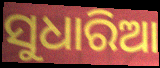
ସୁଧାରିଆ